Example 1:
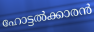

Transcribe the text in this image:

ഹോട്ടൽക്കാരൻ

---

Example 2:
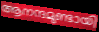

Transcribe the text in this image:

ആനന്ദമുണ്ടായി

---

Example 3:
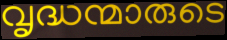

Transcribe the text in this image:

വൃദ്ധന്മാരുടെ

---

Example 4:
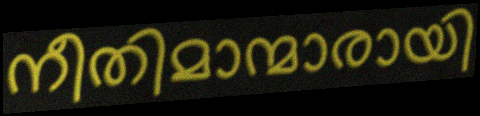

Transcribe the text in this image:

നീതിമാന്മാരായി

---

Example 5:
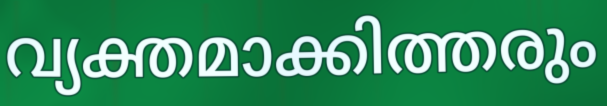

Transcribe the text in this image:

വ്യക്തമാക്കിത്തരും